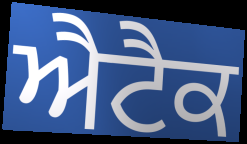
ਐਟੈਕ